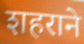
शहराने